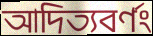
আদিত্যবর্ণং